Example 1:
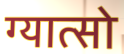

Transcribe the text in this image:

ग्यात्सो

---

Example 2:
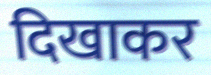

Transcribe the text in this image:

दिखाकर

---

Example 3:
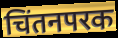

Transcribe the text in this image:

चिंतनपरक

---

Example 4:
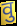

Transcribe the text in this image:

वु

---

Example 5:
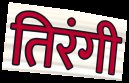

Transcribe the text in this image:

तिरंगी